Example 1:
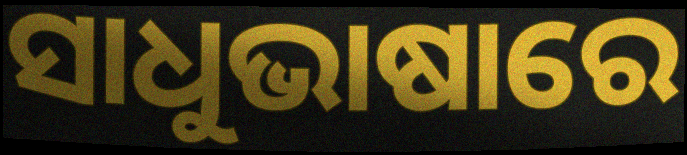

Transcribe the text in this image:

ସାଧୁଭାଷାରେ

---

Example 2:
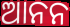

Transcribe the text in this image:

ଆନନ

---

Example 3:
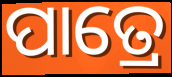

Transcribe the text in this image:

ପାତ୍ରେ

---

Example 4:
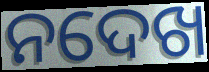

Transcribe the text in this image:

ନଦେଖ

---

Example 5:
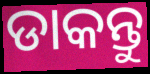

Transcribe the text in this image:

ଡାକନ୍ତୁ